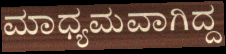
ಮಾಧ್ಯಮವಾಗಿದ್ದ